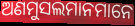
ଅଣମୁସଲମାନମାନେ